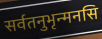
सर्वतनुभृन्मनसि